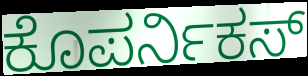
ಕೊಪರ್ನಿಕಸ್